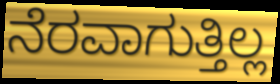
ನೆರವಾಗುತ್ತಿಲ್ಲ